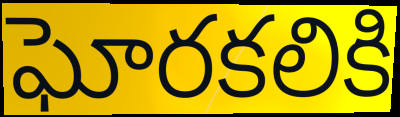
ఘోరకలికి